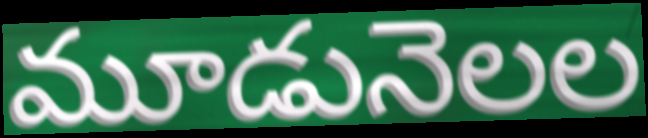
మూడునెలల